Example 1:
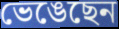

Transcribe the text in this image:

ভেঙেছেন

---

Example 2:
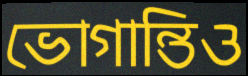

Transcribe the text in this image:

ভোগান্তিও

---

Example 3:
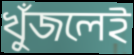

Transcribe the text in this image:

খুঁজলেই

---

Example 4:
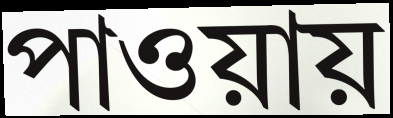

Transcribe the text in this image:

পাওয়ায়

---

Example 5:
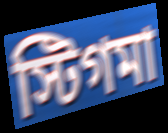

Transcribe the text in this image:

স্টিগমা